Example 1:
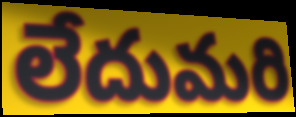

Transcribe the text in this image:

లేదుమరి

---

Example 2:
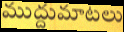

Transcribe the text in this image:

ముద్దుమాటలు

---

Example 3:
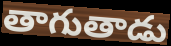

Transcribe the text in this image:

తాగుతాడు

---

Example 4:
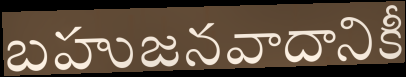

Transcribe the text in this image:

బహుజనవాదానికీ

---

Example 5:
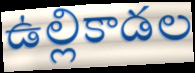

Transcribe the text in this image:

ఉల్లికాడల